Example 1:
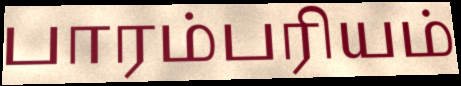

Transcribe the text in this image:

பாரம்பரியம்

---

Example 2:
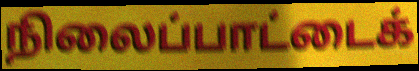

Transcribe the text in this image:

நிலைப்பாட்டைக்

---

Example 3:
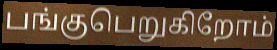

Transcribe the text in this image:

பங்குபெறுகிறோம்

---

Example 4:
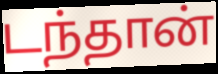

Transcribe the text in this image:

டந்தான்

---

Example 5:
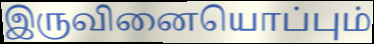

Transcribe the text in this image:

இருவினையொப்பும்